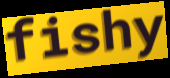
fishy